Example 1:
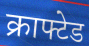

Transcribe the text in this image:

क्राफ्टेड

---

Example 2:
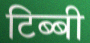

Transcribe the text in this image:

टिब्बी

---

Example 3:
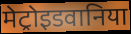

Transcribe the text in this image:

मेट्रोइडवानिया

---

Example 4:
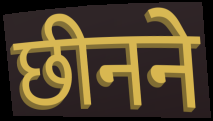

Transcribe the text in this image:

छीनने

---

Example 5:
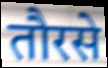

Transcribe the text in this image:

तौरसे